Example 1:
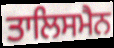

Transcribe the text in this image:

ਤਾਲਿਸਮੈਨ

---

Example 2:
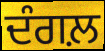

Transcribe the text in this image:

ਦੰਗਲ਼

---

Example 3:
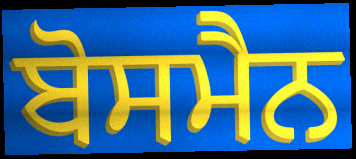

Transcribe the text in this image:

ਬੋਸਮੈਨ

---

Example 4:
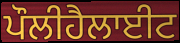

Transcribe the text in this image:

ਪੌਲੀਹੈਲਾਈਟ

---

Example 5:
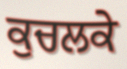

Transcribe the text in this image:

ਕੁਚਲਕੇ